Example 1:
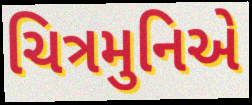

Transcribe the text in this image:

ચિત્રમુનિએ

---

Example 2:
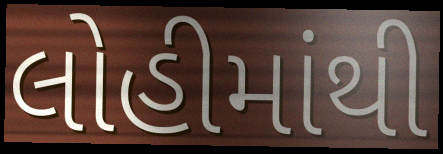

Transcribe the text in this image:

લોહીમાંથી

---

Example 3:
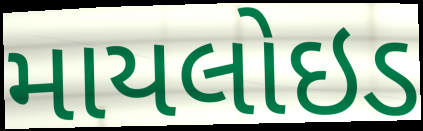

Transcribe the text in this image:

માયલોઇડ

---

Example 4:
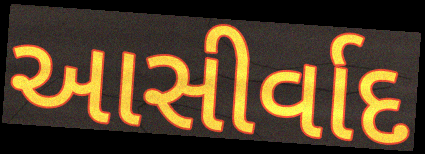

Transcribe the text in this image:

આસીર્વાદ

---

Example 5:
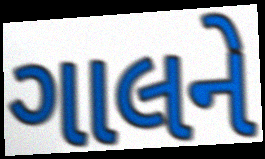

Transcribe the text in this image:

ગાલને